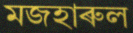
মজহাৰুল